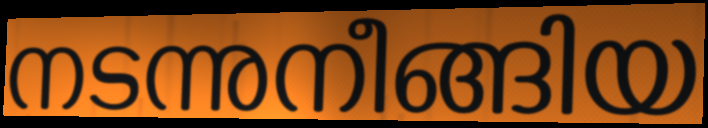
നടന്നുനീങ്ങിയ